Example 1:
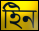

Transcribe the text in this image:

ইিন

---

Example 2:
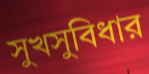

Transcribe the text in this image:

সুখসুবিধার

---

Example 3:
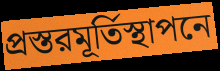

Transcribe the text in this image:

প্রস্তরমূর্তিস্থাপনে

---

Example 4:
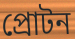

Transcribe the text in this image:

প্রোটন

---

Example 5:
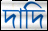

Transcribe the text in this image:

দাদি